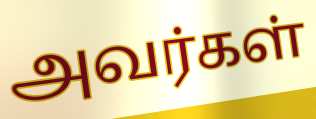
அவர்கள்